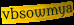
vbsowmya